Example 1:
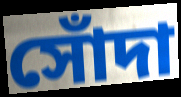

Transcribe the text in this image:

সোঁদা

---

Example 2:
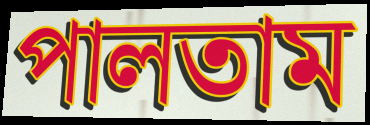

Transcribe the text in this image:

পালতাম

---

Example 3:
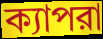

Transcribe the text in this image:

ক্যাপরা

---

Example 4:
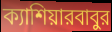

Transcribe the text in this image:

ক্যাশিয়ারবাবুর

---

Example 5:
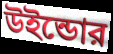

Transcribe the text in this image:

উইন্ডোর